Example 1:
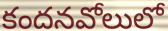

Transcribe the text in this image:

కందనవోలులో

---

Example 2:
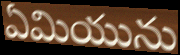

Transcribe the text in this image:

ఏమియును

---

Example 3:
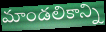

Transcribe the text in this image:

మాండలికాన్ని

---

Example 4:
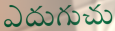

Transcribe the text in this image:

ఎదుగుచు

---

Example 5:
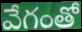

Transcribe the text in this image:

వేగంతో